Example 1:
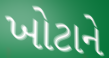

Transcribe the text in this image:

ખોટાને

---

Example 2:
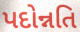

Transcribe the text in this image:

પદોન્નતિ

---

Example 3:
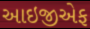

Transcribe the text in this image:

આઇજીએફ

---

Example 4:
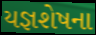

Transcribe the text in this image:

યજ્ઞશેષના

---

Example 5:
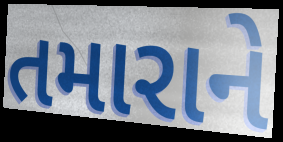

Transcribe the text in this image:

તમારાને